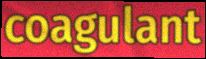
coagulant